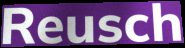
Reusch